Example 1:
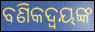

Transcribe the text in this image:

ବଣିକଦ୍ଵୟଙ୍କ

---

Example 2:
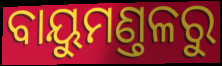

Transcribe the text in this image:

ବାୟୁମଣ୍ତଳରୁ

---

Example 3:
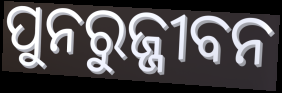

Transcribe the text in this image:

ପୁନରୁଜ୍ଜୀବନ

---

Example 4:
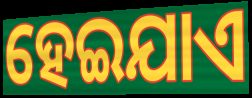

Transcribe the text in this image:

ହେଇଯାଏ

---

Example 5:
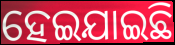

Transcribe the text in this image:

ହେଇଯାଇଛି